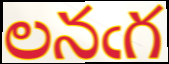
లనఁగ